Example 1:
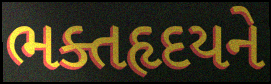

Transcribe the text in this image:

ભક્તહૃદયને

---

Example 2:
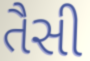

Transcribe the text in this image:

તૈસી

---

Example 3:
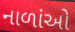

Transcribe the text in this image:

નાળાંઓ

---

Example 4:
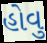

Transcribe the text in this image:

હોવુ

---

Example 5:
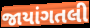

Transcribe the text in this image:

જાયાંગતલી